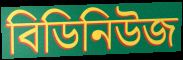
বিডিনিউজ